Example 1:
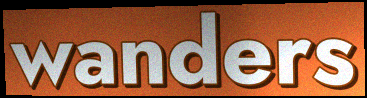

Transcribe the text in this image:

wanders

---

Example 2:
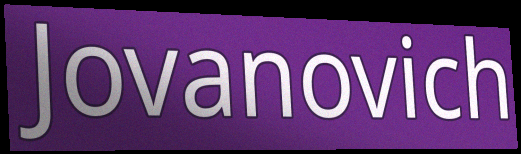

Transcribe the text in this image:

Jovanovich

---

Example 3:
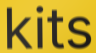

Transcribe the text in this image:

kits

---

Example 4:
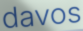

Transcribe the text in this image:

davos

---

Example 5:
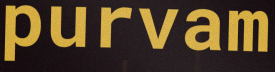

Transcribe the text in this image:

purvam